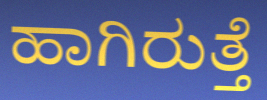
ಹಾಗಿರುತ್ತೆ